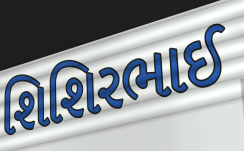
શિશિરભાઈ